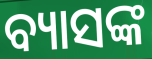
ବ୍ୟାସଙ୍କ